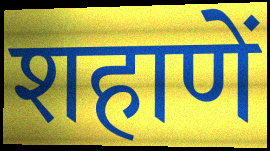
शहाणें